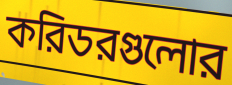
করিডরগুলোর